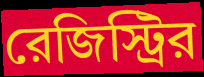
রেজিস্ট্রির